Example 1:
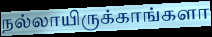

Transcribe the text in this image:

நல்லாயிருக்காங்களா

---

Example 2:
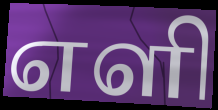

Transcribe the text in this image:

எளி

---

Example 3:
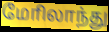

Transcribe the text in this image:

மேரிலாந்து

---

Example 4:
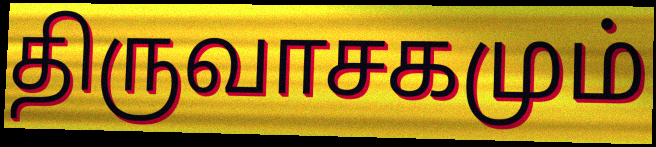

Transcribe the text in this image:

திருவாசகமும்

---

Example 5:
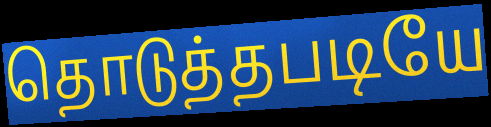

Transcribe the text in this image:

தொடுத்தபடியே